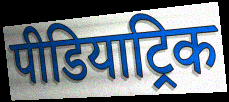
पीडियाट्रिक